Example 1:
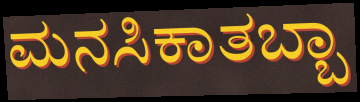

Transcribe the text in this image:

ಮನಸಿಕಾತಬ್ಬಾ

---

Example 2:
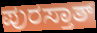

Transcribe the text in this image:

ಪುರಸ್ತಾತ್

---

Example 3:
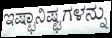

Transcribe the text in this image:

ಇಷ್ಟಾನಿಷ್ಟಗಳನ್ನು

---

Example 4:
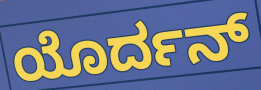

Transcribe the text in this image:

ಯೊರ್ದನ್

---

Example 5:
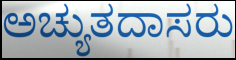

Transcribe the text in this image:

ಅಚ್ಯುತದಾಸರು